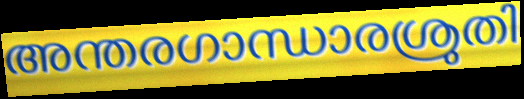
അന്തരഗാന്ധാരശ്രുതി